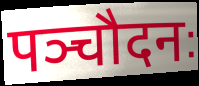
पञ्चौदनः